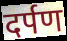
दर्पण